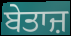
ਬੇਤਾਜ਼